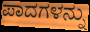
ಪಾದಗಳನ್ನು